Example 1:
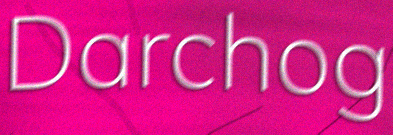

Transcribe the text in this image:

Darchog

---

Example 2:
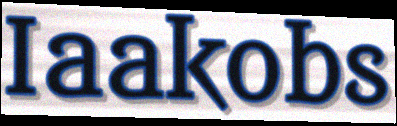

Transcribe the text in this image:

Iaakobs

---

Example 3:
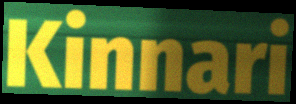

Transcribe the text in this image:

Kinnari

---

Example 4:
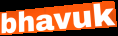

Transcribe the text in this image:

bhavuk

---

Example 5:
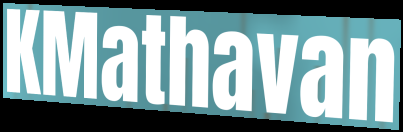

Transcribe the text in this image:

KMathavan